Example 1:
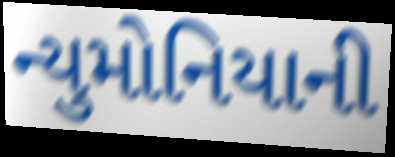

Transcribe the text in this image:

ન્યુમોનિયાની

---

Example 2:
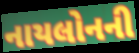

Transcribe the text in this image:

નાયલોનની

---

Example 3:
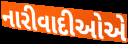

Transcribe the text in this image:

નારીવાદીઓએ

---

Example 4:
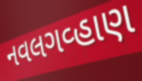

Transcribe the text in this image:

નવલગવ્હાણ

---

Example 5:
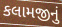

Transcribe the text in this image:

કલામજીનું